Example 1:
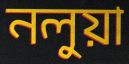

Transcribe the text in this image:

নলুয়া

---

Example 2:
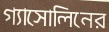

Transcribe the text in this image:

গ্যাসোলিনের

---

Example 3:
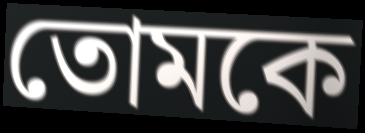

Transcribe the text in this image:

তোমকে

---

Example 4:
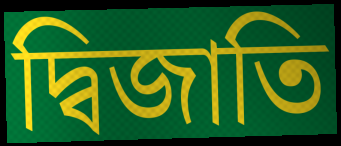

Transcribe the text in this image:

দ্বিজাতি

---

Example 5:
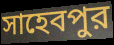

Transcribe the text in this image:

সাহেবপুর